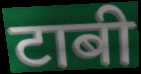
टाबी